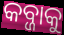
କବ୍ଜାକୁ